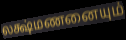
லக்ஷ்மணனையும்